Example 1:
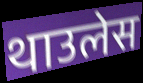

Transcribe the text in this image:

थाउलेस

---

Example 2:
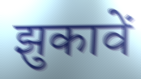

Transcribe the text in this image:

झुकावें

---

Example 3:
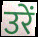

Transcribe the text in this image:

उरें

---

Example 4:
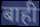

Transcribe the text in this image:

बाही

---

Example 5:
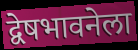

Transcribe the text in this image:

द्वेषभावनेला